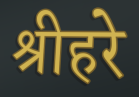
श्रीहरे